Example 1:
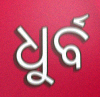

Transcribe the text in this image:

ଧୁର୍ବ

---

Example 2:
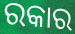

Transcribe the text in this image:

ରକାର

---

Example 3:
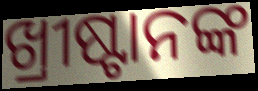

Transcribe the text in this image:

ଖ୍ରୀଷ୍ଟାନଙ୍କ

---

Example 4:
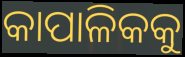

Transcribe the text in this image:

କାପାଳିକକୁ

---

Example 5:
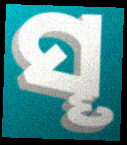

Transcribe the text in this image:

ସୄ